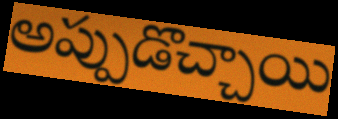
అప్పుడొచ్చాయి